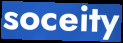
soceity